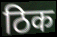
ठिक